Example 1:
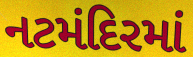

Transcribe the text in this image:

નટમંદિરમાં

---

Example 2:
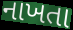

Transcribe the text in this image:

નાખતા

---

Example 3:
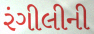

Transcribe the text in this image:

રંગીલીની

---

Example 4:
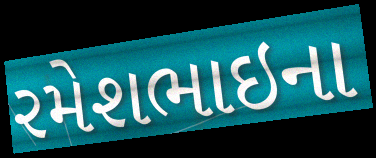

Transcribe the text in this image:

રમેશભાઇના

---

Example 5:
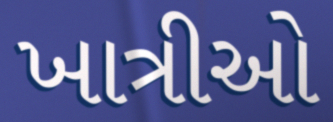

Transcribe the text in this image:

ખાત્રીઓ